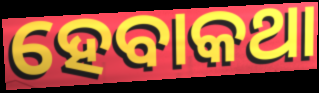
ହେବାକଥା